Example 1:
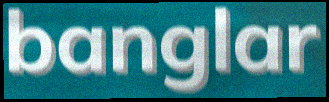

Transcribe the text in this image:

banglar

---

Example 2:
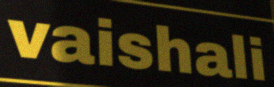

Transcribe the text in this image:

vaishali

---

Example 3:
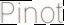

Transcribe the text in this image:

Pinot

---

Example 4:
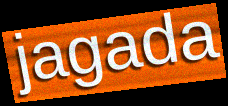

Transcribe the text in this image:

jagada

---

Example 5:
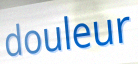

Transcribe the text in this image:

douleur